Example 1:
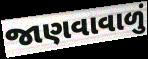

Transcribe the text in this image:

જાણવાવાળું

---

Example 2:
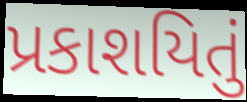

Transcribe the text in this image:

પ્રકાશયિતું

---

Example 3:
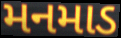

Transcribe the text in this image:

મનમાડ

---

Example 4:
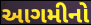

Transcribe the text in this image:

આગમીનો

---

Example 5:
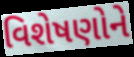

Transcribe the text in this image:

વિશેષણોને